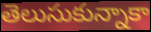
తెలుసుకున్నాకా